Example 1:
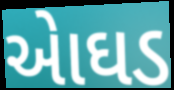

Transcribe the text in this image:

એાઘડ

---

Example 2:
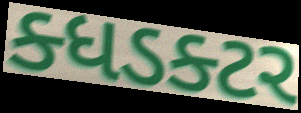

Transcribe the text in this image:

ક્ધડક્ટર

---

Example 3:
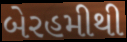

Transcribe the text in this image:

બેરહમીથી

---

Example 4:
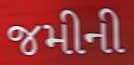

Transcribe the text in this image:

જમીની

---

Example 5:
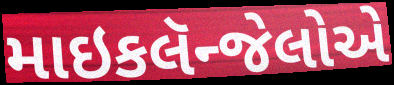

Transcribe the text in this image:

માઇકલૅન્જેલોએ